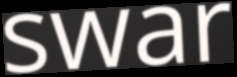
swar